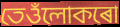
তেওঁলোকৰো